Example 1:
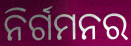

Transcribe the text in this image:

ନିର୍ଗମନର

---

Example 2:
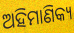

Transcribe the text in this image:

ଅହିମାଣିକ୍ୟ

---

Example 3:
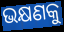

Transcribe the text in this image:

ଭକ୍ଷଣକୁ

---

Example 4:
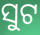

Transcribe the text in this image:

ସୁଟ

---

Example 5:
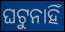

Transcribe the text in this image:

ଘଟୁନାହିଁ